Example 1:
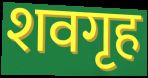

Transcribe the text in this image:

शवगृह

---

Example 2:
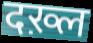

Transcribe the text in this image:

दख़्ल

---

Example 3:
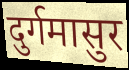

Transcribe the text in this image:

दुर्गमासुर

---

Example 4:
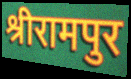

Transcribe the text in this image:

श्रीरामपुर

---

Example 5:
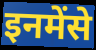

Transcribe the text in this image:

इनमेंसे